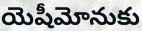
యెషీమోనుకు